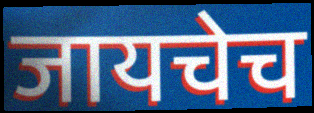
जायचेच